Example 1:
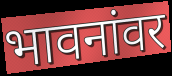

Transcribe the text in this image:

भावनांवर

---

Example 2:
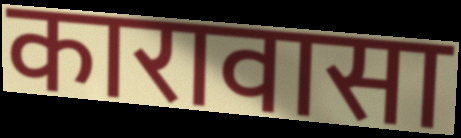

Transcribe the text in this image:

कारावासा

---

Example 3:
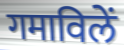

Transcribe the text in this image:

गमाविलें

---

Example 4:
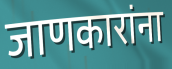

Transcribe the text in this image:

जाणकारांना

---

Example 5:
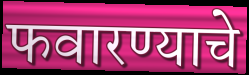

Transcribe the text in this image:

फवारण्याचे